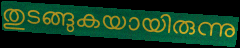
തുടങ്ങുകയായിരുന്നു